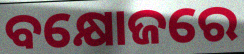
ବକ୍ଷୋଜରେ